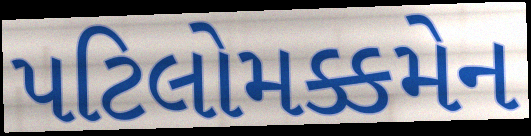
પટિલોમક્કમેન